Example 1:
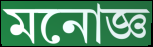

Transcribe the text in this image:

মনোজ্ঞ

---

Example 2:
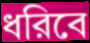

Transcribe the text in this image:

ধরিবে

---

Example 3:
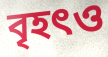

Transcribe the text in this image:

বৃহৎও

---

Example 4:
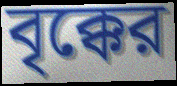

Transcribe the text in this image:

বৃক্কের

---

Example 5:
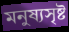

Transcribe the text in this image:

মনুষ্যসৃষ্ট